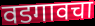
वडगावचा